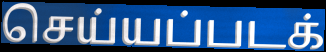
செய்யப்படக்